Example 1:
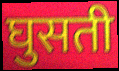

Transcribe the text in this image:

घुसती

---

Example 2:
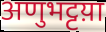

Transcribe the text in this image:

अणुभट्टय़ा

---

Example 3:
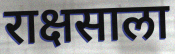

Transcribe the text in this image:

राक्षसाला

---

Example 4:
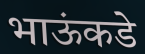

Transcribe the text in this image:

भाऊंकडे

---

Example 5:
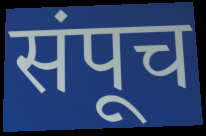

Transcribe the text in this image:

संपूच